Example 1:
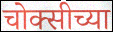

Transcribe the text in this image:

चोक्सीच्या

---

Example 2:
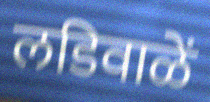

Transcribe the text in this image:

लडिवाळें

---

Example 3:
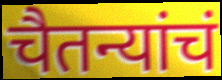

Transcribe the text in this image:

चैतन्यांचं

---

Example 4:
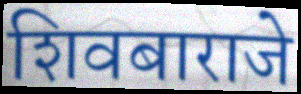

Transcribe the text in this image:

शिवबाराजे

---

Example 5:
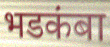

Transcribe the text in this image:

भडकंबा